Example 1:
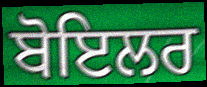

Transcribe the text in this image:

ਬੋਇਲਰ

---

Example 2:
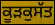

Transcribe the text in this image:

ਕੂੜਕੁਸੱਤ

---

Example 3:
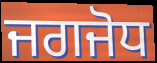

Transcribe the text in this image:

ਜਗਜੋਧ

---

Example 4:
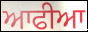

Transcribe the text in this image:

ਆਫੀਆ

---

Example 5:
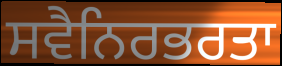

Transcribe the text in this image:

ਸਵੈਨਿਰਭਰਤਾ